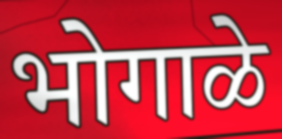
भोगाळे